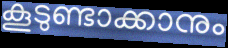
കൂടുണ്ടാക്കാനും